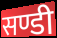
सण्डी